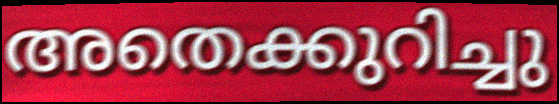
അതെക്കുറിച്ചു